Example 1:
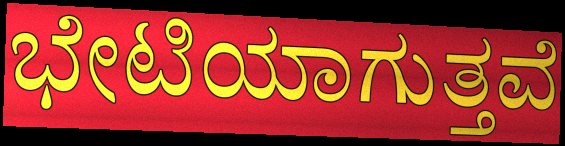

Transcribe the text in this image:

ಭೇಟಿಯಾಗುತ್ತವೆ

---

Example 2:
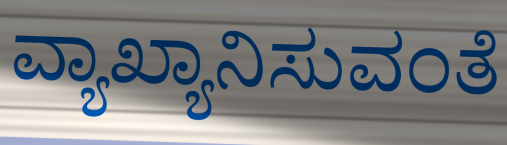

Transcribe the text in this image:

ವ್ಯಾಖ್ಯಾನಿಸುವಂತೆ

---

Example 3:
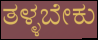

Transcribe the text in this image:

ತಳ್ಳಬೇಕು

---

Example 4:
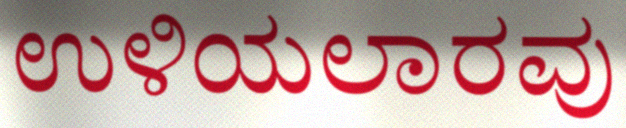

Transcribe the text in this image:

ಉಳಿಯಲಾರವು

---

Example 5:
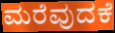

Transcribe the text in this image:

ಮರೆವುದಕೆ